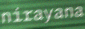
nirayana